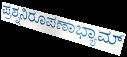
ಪ್ರಶ್ನನಿರೂಪಣಾಭ್ಯಾಮ್